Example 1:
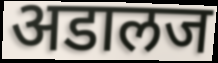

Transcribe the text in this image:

अडालज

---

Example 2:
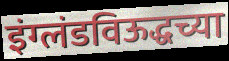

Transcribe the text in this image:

इंग्लंडविऊद्धच्या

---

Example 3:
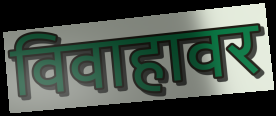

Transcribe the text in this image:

विवाहावर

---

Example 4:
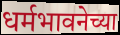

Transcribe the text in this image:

धर्मभावनेच्या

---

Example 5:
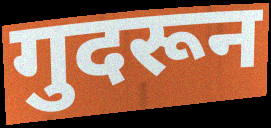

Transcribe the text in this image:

गुदरून